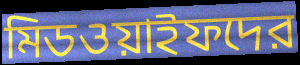
মিডওয়াইফদের